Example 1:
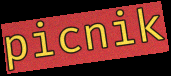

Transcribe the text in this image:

picnik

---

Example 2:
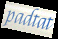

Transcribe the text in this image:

padtat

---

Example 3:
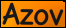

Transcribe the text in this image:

Azov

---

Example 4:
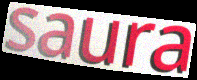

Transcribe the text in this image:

saura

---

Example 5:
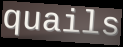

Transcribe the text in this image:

quails